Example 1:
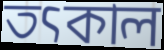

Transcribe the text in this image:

তৎকাল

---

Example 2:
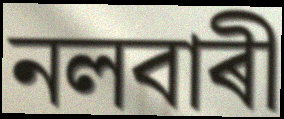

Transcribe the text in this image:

নলবাৰী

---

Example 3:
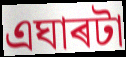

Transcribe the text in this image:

এঘাৰটা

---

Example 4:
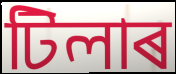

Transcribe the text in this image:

টিলাৰ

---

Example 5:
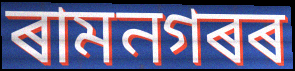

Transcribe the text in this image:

ৰামনগৰৰ